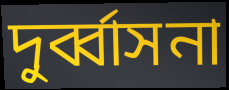
দুর্ব্বাসনা